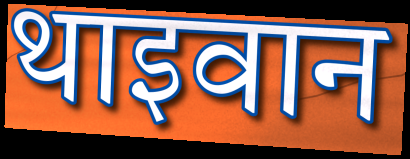
थाइवान